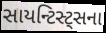
સાયન્ટિસ્ટ્સના